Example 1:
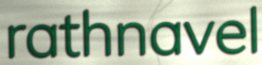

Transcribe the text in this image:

rathnavel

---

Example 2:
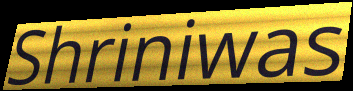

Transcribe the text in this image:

Shriniwas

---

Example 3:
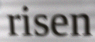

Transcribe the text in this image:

risen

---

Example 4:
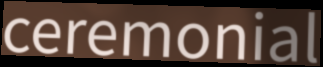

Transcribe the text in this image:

ceremonial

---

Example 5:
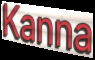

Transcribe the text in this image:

Kanna